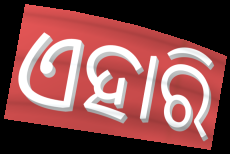
ଏହାରି